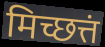
मिच्छत्तं